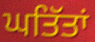
ਘਤਿੱਤਾਂ